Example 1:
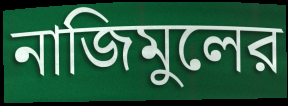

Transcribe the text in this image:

নাজিমুলের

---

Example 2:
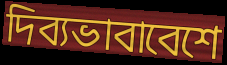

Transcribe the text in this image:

দিব্যভাবাবেশে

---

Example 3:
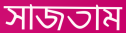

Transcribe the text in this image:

সাজতাম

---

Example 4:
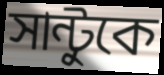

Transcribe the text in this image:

সান্টুকে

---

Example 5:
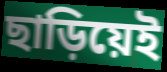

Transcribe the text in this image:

ছাড়িয়েই